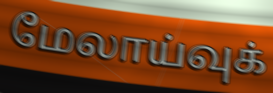
மேலாய்வுக்